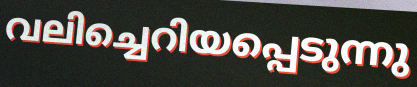
വലിച്ചെറിയപ്പെടുന്നു